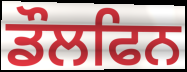
ਡੌਲਫਿਨ